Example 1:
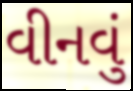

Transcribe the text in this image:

વીનવું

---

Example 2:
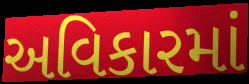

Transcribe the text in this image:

અવિકારમાં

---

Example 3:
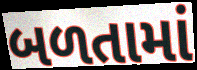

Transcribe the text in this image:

બળતામાં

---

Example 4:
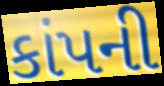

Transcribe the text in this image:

કાંપની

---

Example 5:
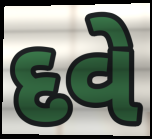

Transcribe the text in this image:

દવે